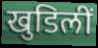
खुडिलीं